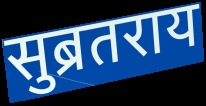
सुब्रतराय